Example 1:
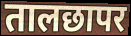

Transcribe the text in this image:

तालछापर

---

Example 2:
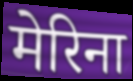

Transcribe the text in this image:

मेरिना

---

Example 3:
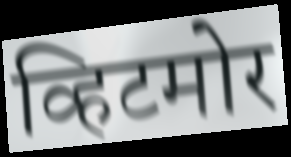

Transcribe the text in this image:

व्हिटमोर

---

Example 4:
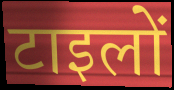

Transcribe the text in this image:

टाइलों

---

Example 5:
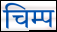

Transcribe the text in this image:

चिम्प